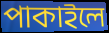
পাকাইলে